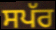
ਸਪੱਰ